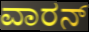
ವಾರನ್